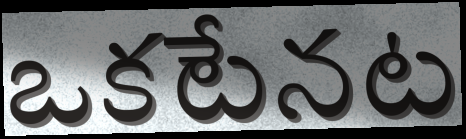
ఒకటేనట